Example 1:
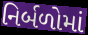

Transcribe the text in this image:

નિર્બળોમાં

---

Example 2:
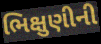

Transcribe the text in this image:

ભિક્ષુણીની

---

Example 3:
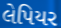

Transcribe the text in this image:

લેપિયર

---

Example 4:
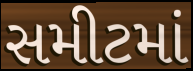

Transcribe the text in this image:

સમીટમાં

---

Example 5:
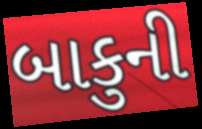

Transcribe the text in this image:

બાકુની